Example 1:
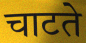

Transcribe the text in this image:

चाटते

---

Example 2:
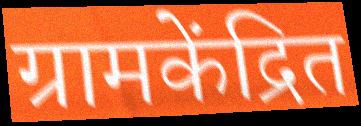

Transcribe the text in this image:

ग्रामकेंद्रित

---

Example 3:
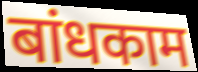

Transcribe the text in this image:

बांधकाम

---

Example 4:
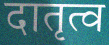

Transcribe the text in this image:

दातृत्व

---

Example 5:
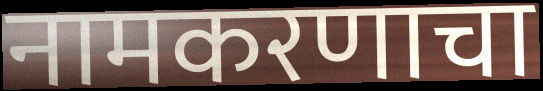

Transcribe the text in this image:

नामकरणाचा